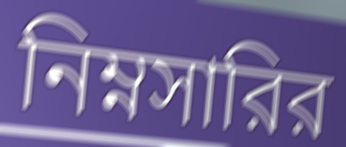
নিম্নসারির